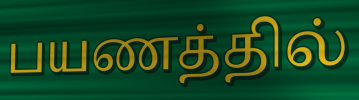
பயணத்தில்